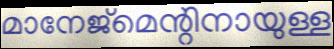
മാനേജ്മെന്റിനായുള്ള